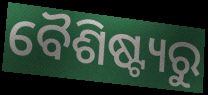
ବୈଶିଷ୍ଟ୍ୟରୁ